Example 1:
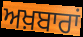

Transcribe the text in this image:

ਅਖ਼ਬਾਰਾਂ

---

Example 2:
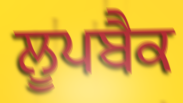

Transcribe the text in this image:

ਲੂਪਬੈਕ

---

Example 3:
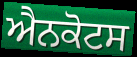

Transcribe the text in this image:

ਐਨਕੋਟਸ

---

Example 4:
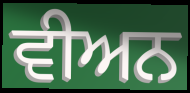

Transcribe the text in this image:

ਵੀਅਨ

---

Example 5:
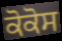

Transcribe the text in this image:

ਕੋਕੋਸ